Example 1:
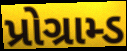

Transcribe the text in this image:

પ્રોગ્રામ્ડ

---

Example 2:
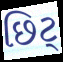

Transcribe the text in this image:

છિટ્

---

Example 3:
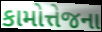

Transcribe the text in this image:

કામોત્તેજના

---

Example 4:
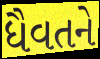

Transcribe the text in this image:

ધૈવતને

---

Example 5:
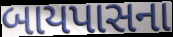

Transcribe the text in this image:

બાયપાસના